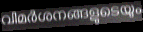
വിമർശനങ്ങളുടെയും